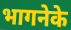
भागनेके